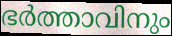
ഭർത്താവിനും